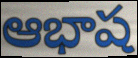
ఆభాష